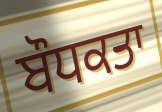
ਬੌਧਕਤਾ